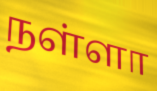
நள்ளா